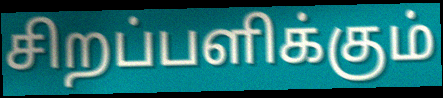
சிறப்பளிக்கும்